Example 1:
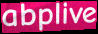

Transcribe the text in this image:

abplive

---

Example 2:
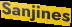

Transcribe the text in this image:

Sanjines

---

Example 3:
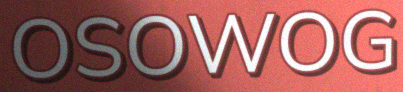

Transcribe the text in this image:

OSOWOG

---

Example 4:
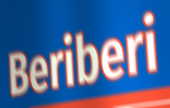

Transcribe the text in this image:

Beriberi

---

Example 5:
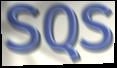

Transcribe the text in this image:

SQS